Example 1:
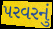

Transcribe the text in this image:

પરવરનું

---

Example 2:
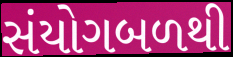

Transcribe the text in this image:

સંયોગબળથી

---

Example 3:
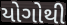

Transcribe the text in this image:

યોગોથી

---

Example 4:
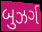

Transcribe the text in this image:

બુઝર્ગ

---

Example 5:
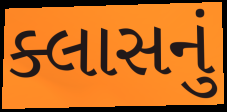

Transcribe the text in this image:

ક્લાસનું